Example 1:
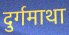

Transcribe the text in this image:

दुर्गमाथा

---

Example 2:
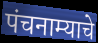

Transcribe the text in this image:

पंचनाम्याचे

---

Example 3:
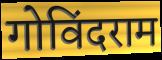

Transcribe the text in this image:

गोविंदराम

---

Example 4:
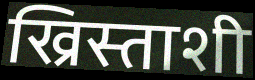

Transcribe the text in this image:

ख्रिस्ताशी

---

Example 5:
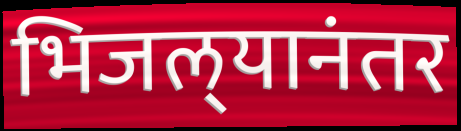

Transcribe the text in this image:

भिजल्यानंतर